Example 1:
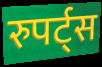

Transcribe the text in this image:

रुपर्ट्स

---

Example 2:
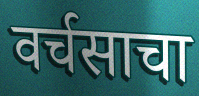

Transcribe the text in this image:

वर्चसाचा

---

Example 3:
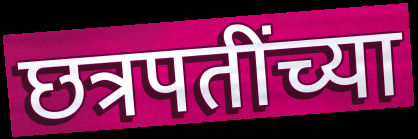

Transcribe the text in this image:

छत्रपतींच्या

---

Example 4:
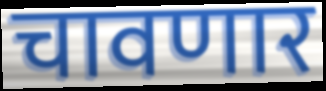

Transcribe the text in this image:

चावणार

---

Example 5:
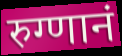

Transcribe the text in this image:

रुग्णानं